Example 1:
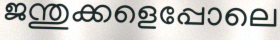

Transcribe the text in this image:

ജന്തുക്കളെപ്പോലെ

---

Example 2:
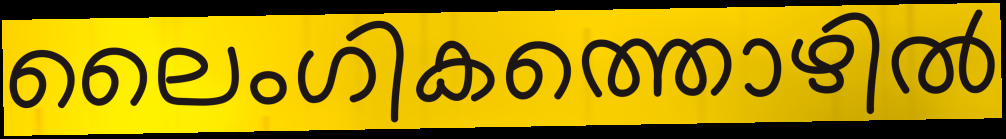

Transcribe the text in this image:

ലൈംഗികത്തൊഴിൽ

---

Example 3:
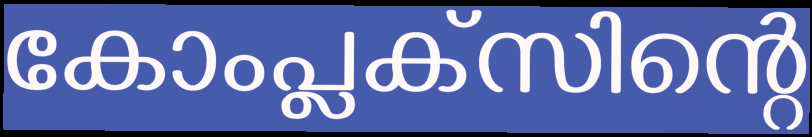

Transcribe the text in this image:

കോംപ്ലക്‌സിന്റെ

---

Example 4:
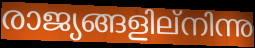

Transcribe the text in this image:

രാജ്യങ്ങളില്നിന്നു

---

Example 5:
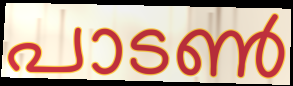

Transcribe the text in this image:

പാടൺ